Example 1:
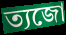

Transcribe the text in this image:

ত্যজো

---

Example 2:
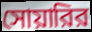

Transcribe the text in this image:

সোয়ারির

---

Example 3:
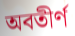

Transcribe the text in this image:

অবতীর্ণ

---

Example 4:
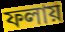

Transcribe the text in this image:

ফলায়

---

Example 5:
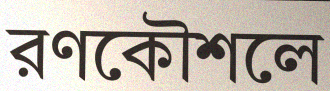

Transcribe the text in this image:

রণকৌশলে